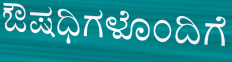
ಔಷಧಿಗಳೊಂದಿಗೆ